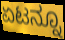
ಏಟನ್ನೂ